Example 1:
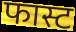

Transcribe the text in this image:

फास्ट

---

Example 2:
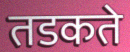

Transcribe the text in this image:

तडकते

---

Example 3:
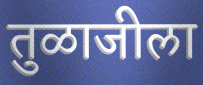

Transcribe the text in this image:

तुळाजीला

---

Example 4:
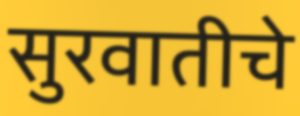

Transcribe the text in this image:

सुरवातीचे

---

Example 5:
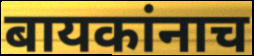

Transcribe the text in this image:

बायकांनाच